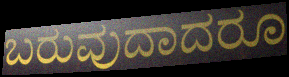
ಬರುವುದಾದರೂ